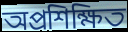
অপ্রশিক্ষিত